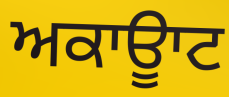
ਅਕਾਊਾਟ